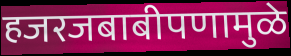
हजरजबाबीपणामुळे